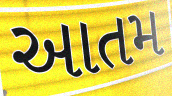
આતમ